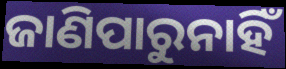
ଜାଣିପାରୁନାହିଁ